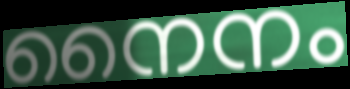
നൈനം